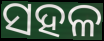
ସହଳ